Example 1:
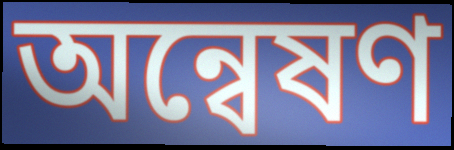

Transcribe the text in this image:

অন্বেষণ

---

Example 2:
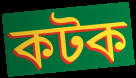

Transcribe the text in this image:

কটক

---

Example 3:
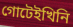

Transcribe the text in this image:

গোটেইখিনি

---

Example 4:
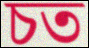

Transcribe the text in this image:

চত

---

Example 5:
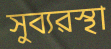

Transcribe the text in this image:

সুব্যৱস্থা